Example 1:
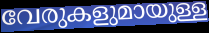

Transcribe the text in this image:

വേരുകളുമായുള്ള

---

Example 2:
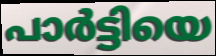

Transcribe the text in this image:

പാർട്ടിയെ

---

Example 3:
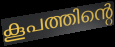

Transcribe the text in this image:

കൂപത്തിന്റെ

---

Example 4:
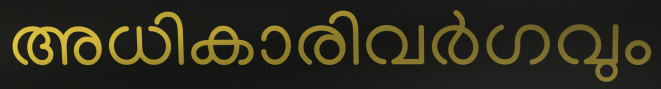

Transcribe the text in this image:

അധികാരിവർഗവും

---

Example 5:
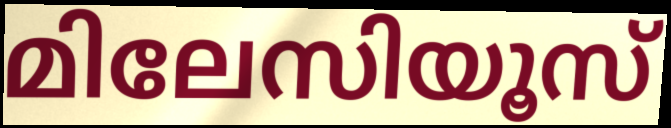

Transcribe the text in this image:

മിലേസിയൂസ്